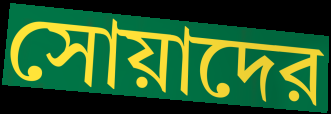
সোয়াদের